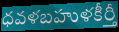
ధవళబహుళకీర్తీ